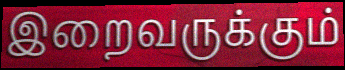
இறைவருக்கும்